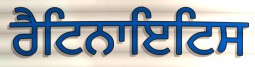
ਰੈਟਿਨਾਇਟਿਸ